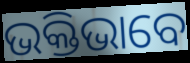
ଭକ୍ତିଭାବେ